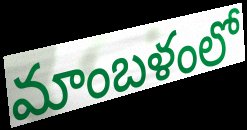
మాంబళంలో